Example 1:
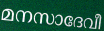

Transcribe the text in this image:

മനസാദേവീ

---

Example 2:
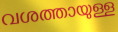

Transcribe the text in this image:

വശത്തായുള്ള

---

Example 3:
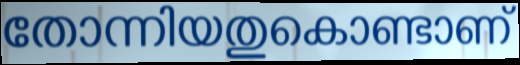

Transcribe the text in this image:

തോന്നിയതുകൊണ്ടാണ്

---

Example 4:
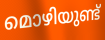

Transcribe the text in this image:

മൊഴിയുണ്ട്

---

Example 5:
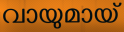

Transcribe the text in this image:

വായുമായ്